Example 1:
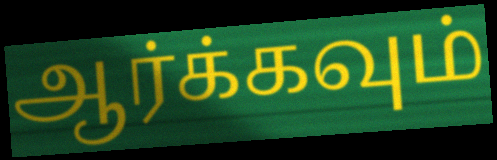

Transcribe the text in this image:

ஆர்க்கவும்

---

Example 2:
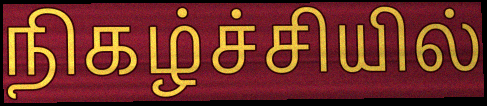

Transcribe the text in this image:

நிகழ்ச்சியில்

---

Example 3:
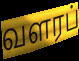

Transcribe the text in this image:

வளரப்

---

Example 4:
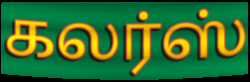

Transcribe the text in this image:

கலர்ஸ்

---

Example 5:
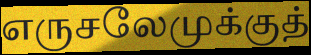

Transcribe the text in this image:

எருசலேமுக்குத்